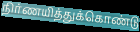
நிர்ணயித்துக்கொண்டு